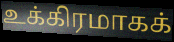
உக்கிரமாகக்